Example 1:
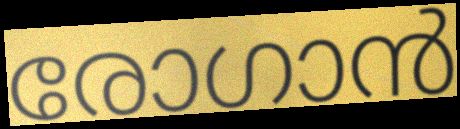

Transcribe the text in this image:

രോഗാൻ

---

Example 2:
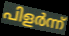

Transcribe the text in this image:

പിളർന്ന്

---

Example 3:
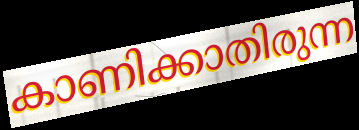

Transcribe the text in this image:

കാണിക്കാതിരുന്ന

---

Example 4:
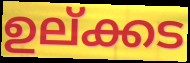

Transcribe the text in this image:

ഉല്ക്കട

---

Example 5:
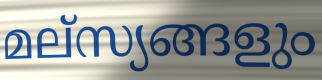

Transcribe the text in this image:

മല്സ്യങ്ങളും